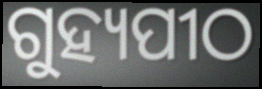
ଗୁହ୍ୟପୀଠ